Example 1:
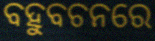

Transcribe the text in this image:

ବହୁବଚନରେ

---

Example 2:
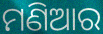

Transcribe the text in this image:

ମଣିଆର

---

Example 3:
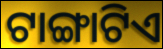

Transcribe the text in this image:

ଟାଙ୍ଗାଟିଏ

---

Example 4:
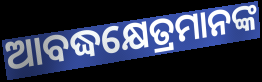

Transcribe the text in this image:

ଆବଦ୍ଧକ୍ଷେତ୍ରମାନଙ୍କ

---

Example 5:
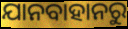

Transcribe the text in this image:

ଯାନବାହାନରୁ